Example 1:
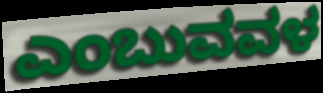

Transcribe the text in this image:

ಎಂಬುವವಳ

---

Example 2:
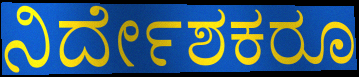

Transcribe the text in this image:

ನಿರ್ದೇಶಕರೂ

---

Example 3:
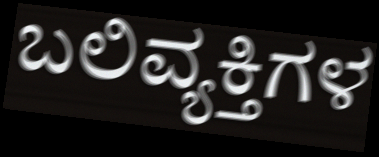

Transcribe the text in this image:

ಬಲಿವ್ಯಕ್ತಿಗಳ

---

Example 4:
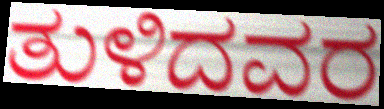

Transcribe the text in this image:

ತುಳಿದವರ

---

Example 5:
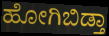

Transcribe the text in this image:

ಹೋಗಿಬಿಡ್ತಾ